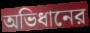
অভিধানের